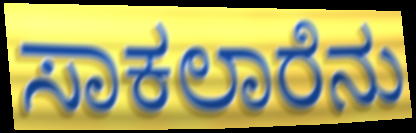
ಸಾಕಲಾರೆನು